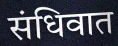
संधिवात